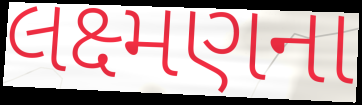
લક્ષ્મણના